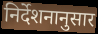
निर्देशनानुसार